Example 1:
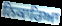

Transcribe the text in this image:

ਨਿਕਾਰਿਆ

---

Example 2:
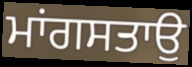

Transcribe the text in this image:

ਮਾਂਗਸਤਾਉ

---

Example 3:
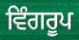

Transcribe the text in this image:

ਵਿੰਗਰੂਪ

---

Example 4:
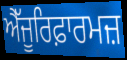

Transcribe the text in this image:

ਐੱਜੂਰਿਫ਼ਾਰਮਜ਼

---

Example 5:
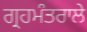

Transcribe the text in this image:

ਗ੍ਰਹਮੰਤਰਾਲੇ